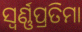
ସ୍ୱର୍ଣ୍ଣପ୍ରତିମା